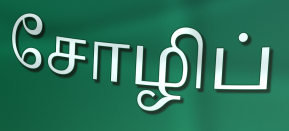
சோழிப்